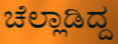
ಚೆಲ್ಲಾಡಿದ್ದ